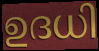
ഉദധി